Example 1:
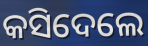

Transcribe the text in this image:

କସିଦେଲେ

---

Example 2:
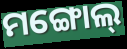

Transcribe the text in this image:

ମଙ୍ଗୋଲ୍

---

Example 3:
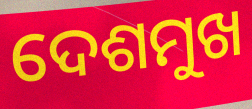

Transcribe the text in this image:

ଦେଶମୁଖ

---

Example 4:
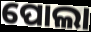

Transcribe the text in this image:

ପୋଲା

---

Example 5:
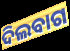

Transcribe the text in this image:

ଦିଲବାଗ